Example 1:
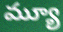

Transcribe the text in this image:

మ్యూ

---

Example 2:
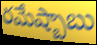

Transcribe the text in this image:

రమేష్బాబు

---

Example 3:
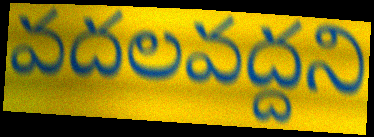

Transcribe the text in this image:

వదలవద్దని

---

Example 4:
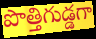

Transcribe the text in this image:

పొత్తిగుడ్డగా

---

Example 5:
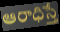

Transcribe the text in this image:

ఆరాధిస్తే